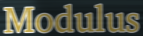
Modulus